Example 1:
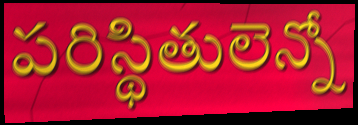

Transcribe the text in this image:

పరిస్థితులెన్నో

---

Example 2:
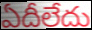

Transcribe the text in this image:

ఏదీలేదు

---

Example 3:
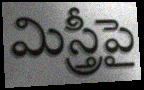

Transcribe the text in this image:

మిస్త్రీపై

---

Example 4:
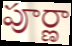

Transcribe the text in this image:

పూర్ణా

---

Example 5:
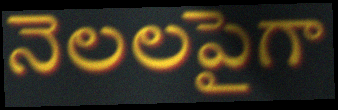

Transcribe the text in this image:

నెలలపైగా